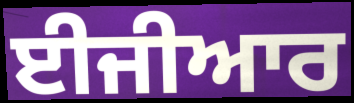
ਈਜੀਆਰ